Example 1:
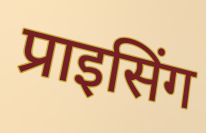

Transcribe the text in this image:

प्राइसिंग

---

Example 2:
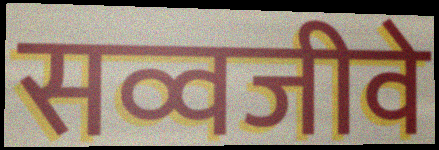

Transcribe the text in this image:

सव्वजीवे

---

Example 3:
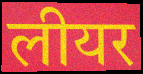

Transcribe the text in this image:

लीयर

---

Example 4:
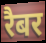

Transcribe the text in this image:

रैबर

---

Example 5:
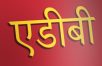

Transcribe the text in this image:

एडीबी